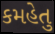
કમહેતુ